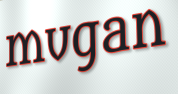
mugan